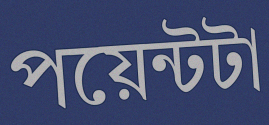
পয়েন্টটা